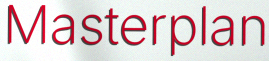
Masterplan